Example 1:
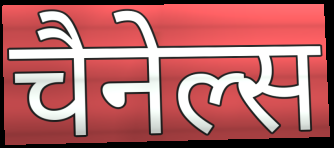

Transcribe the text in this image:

चैनेल्स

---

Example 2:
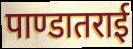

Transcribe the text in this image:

पाण्डातराई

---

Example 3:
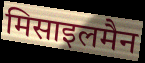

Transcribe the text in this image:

मिसाइलमैन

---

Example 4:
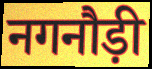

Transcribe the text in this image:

नगनौड़ी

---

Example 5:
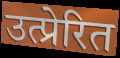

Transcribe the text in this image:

उत्‍प्रेरित